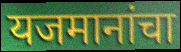
यजमानांचा